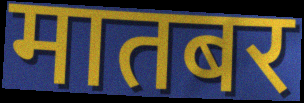
मातबर